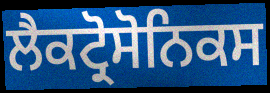
ਲੈਕਟ੍ਰੋਸੋਨਿਕਸ